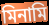
মিনামি